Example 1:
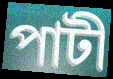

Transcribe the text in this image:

পাটী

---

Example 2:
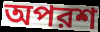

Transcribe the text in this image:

অপরশ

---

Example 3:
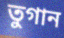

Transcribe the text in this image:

তুগান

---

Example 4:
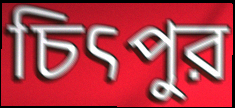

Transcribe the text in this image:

চিৎপুর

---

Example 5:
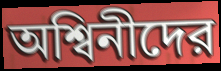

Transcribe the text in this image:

অশ্বিনীদের